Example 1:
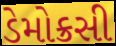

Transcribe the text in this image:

ડેમોક્રસી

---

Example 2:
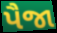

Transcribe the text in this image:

પૈજા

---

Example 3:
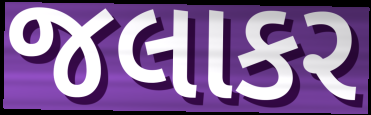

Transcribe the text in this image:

જલાકર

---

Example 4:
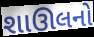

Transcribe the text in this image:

શાઊલનો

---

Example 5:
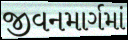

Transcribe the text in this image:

જીવનમાર્ગમાં